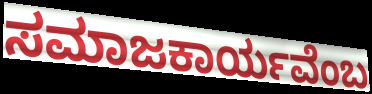
ಸಮಾಜಕಾರ್ಯವೆಂಬ